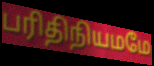
பரிதிநியமமே